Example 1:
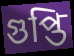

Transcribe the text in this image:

গুপ্তি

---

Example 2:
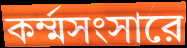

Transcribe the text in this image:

কর্ম্মসংসারে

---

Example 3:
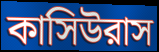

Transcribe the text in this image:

কাসিউরাস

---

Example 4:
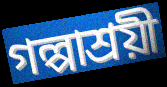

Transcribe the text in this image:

গল্পাশ্রয়ী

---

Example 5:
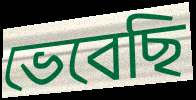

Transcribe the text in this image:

ভেবেছি